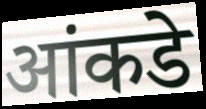
आंकडे